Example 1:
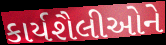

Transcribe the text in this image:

કાર્યશૈલીઓને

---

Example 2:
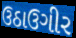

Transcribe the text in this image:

ઉઠાઉગીર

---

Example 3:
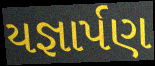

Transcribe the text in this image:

યજ્ઞાર્પણ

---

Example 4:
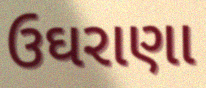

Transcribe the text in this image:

ઉઘરાણા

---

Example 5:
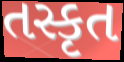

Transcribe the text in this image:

તસ્કૃત